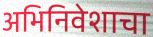
अभिनिवेशाचा